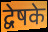
द्वेषके